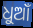
ଧୁଆଁ